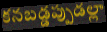
కనబడ్డప్పుడల్లా